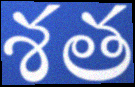
శత